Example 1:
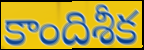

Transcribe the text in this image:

కాందిశీక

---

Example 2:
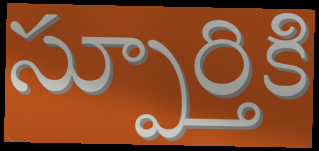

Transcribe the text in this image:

స్పూర్తికి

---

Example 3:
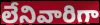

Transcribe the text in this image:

లేనివారిగా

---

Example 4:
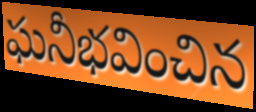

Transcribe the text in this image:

ఘనీభవించిన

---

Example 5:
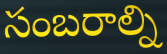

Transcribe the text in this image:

సంబరాల్ని